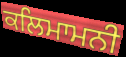
ਕਲਿਮਾਮਨੀ